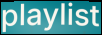
playlist